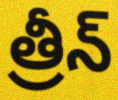
త్రీన్